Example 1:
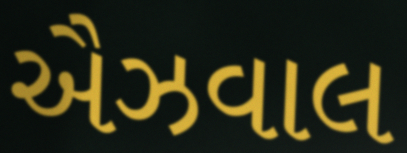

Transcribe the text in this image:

ઐઝવાલ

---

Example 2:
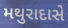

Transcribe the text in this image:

મથુરાદાસે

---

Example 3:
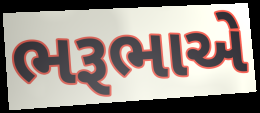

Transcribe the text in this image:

ભરૂભાએ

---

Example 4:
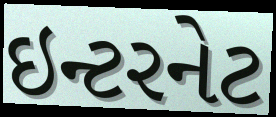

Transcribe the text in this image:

ઇન્ટરનેટ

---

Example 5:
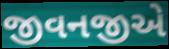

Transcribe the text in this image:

જીવનજીએ